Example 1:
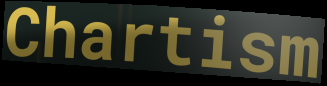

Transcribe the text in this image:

Chartism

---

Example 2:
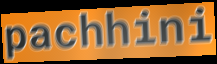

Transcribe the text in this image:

pachhini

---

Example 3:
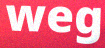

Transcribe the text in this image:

weg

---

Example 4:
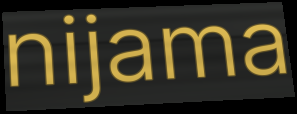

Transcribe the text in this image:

nijama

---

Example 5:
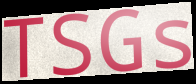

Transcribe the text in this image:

TSGs